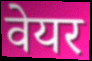
वेयर